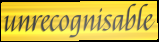
unrecognisable